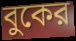
বুকের